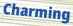
Charming